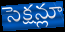
సెక్షన్లూ